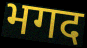
भगद